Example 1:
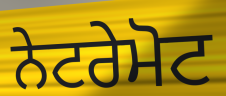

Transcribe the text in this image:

ਨੇਟਰੇਮੋਟ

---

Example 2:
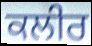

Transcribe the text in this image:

ਕਲੀਰ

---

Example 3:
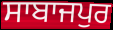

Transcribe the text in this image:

ਸਾਬਾਜਪੁਰ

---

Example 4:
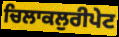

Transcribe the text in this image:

ਚਿਲਾਕਲੁਰੀਪੇਟ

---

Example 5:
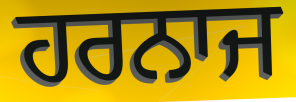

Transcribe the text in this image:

ਹਰਨਾਜ